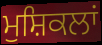
ਮੁਸ਼ਿਕਲਾਂ